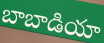
బాబాడియా